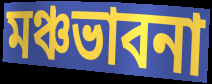
মঞ্চভাবনা